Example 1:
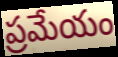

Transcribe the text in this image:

ప్రమేయం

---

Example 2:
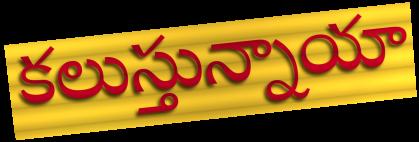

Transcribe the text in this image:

కలుస్తున్నాయా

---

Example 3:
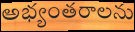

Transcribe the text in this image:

అభ్యంతరాలను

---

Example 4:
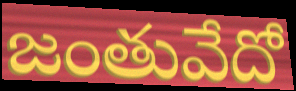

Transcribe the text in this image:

జంతువేదో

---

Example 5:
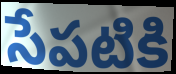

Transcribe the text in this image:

సేపటికి